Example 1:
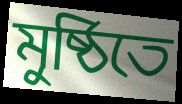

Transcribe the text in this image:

মুষ্ঠিতে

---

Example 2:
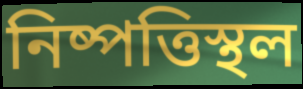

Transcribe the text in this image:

নিষ্পত্তিস্থল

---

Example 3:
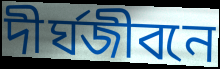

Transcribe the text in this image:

দীর্ঘজীবনে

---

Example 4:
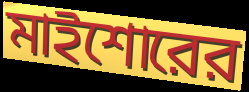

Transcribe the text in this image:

মাইশোরের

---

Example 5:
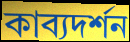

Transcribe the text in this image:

কাব্যদর্শন